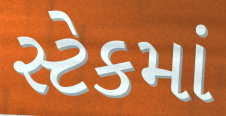
સ્ટેકમાં